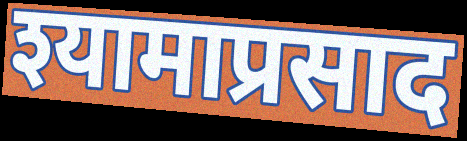
श्यामाप्रसाद